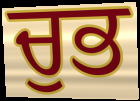
ਚੁਭ